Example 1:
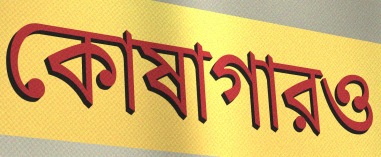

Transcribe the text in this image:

কোষাগারও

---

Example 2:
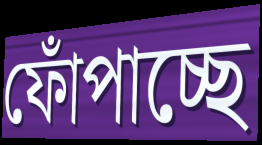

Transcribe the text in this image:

ফোঁপাচ্ছে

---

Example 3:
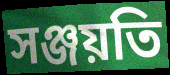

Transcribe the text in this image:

সঞ্জয়তি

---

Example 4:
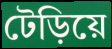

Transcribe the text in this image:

টেড়িয়ে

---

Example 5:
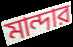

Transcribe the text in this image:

মান্দার